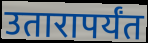
उतारापर्यंत